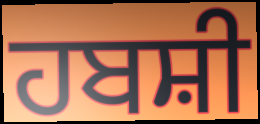
ਹਬਸ਼ੀ